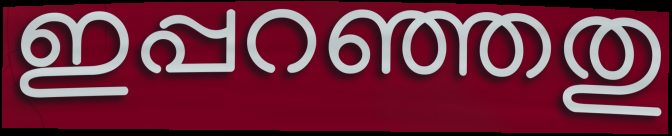
ഇപ്പറഞ്ഞതു